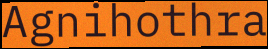
Agnihothra